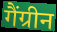
गैंग्रीन